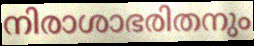
നിരാശാഭരിതനും